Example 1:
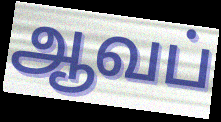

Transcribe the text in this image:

ஆவப்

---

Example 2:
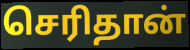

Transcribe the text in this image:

செரிதான்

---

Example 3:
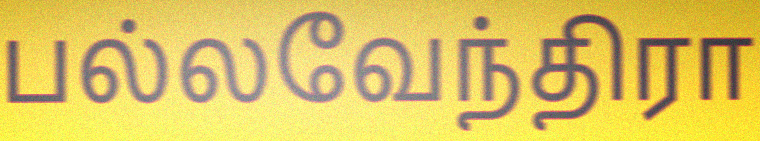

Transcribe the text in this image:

பல்லவேந்திரா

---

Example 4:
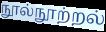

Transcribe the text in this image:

நூல்நூற்றல்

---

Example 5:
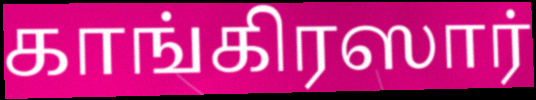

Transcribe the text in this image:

காங்கிரஸார்